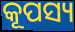
କୂପସ୍ୟ